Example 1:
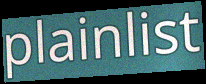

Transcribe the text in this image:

plainlist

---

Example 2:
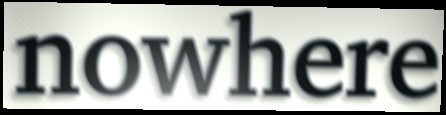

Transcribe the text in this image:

nowhere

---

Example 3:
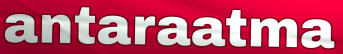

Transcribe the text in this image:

antaraatma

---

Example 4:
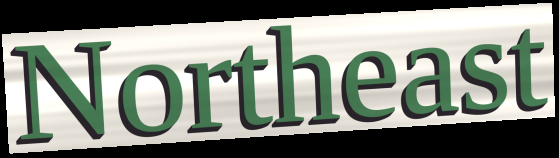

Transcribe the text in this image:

Northeast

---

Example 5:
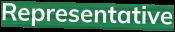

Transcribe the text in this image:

Representative